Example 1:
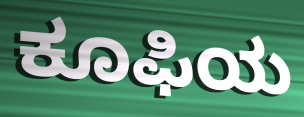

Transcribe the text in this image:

ಕೂಫಿಯ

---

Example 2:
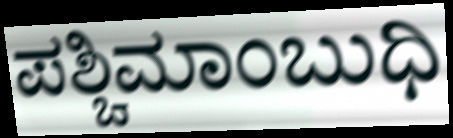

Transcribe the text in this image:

ಪಶ್ಚಿಮಾಂಬುಧಿ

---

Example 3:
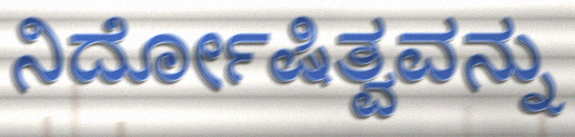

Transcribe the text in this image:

ನಿರ್ದೋಷಿತ್ವವನ್ನು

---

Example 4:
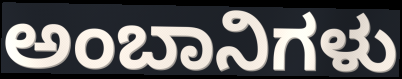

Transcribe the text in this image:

ಅಂಬಾನಿಗಳು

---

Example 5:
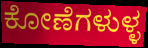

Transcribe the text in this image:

ಕೋಣೆಗಳುಳ್ಳ